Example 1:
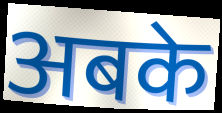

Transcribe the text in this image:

अबके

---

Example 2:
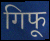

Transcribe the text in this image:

गिफू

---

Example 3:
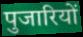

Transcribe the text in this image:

पुजारियों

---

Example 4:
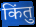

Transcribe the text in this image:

किंतु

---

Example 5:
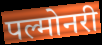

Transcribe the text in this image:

पल्मोनरी